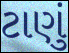
ટાણું